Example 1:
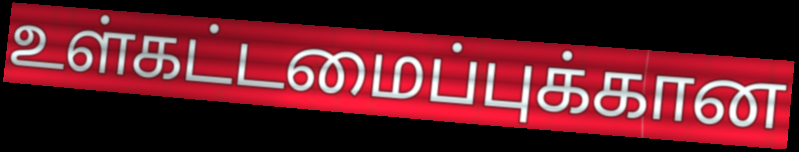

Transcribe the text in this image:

உள்கட்டமைப்புக்கான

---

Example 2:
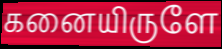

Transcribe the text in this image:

கனையிருளே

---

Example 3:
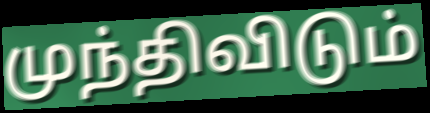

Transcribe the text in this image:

முந்திவிடும்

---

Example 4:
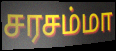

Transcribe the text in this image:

சரசம்மா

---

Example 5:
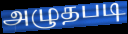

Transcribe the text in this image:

அழுதபடி